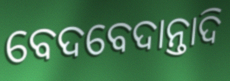
ବେଦବେଦାନ୍ତାଦି